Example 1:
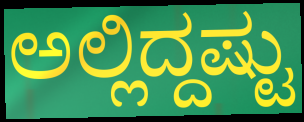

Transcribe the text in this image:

ಅಲ್ಲಿದ್ದಷ್ಟು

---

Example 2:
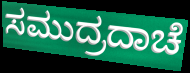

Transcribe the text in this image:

ಸಮುದ್ರದಾಚೆ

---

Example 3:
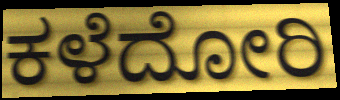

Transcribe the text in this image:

ಕಳೆದೋರಿ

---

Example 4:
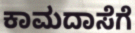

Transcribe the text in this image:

ಕಾಮದಾಸೆಗೆ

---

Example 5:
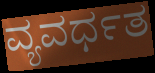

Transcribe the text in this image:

ವ್ಯವರ್ಧತ